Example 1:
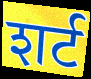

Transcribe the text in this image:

शर्ट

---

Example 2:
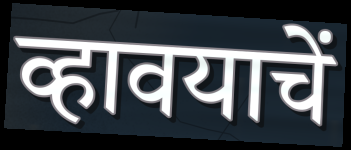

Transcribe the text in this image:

व्हावयाचें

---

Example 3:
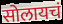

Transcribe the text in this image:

सोलायचं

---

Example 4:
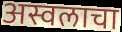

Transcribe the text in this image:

अस्वलाचा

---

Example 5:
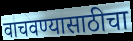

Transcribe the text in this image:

वाचवण्यासाठीचा